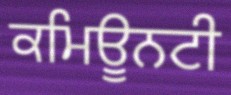
ਕਮਿਊਨਟੀ